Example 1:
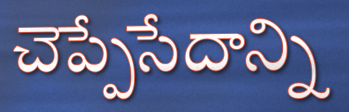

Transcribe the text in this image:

చెప్పేసేదాన్ని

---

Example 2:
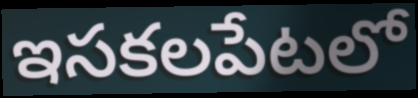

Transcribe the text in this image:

ఇసకలపేటలో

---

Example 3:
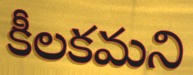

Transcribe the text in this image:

కీలకమని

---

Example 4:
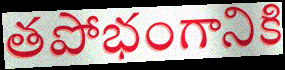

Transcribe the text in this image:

తపోభంగానికి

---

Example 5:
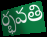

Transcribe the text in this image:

ర్భవతి